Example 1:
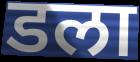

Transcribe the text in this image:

डला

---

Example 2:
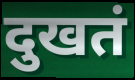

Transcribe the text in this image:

दुखतं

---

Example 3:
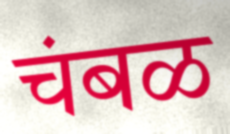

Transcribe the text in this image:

चंबळ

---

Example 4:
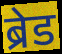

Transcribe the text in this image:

ब्रेड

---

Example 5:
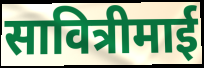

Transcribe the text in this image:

सावित्रीमाई